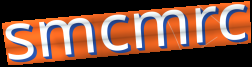
smcmrc